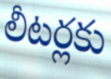
లీటర్లకు